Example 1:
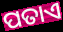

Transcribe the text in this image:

ପତାଏ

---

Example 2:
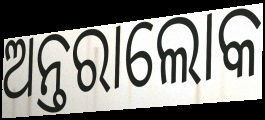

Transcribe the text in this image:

ଅନ୍ତରାଲୋକ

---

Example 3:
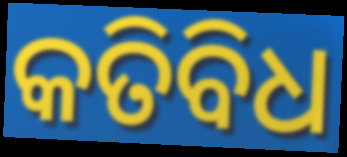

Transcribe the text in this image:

କତିବିଧ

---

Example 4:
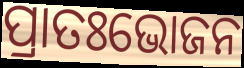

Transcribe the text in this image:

ପ୍ରାତଃଭୋଜନ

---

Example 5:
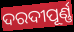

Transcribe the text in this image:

ଦରଦୀପୂର୍ଣ୍ଣ